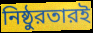
নিষ্ঠুরতারই